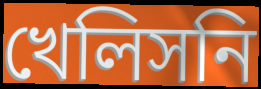
খেলিসনি